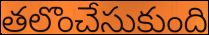
తలొంచేసుకుంది